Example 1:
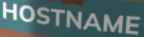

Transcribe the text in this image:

HOSTNAME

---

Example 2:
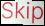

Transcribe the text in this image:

Skip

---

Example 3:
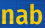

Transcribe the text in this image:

nab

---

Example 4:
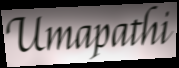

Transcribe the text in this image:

Umapathi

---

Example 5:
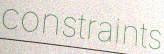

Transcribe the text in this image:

constraints